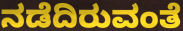
ನಡೆದಿರುವಂತೆ